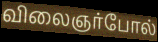
விலைஞர்போல்